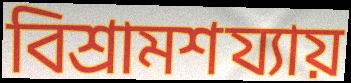
বিশ্রামশয্যায়